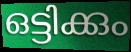
ഒട്ടിക്കും